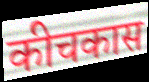
कीचकास